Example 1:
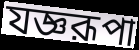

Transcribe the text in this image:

যজ্ঞরূপা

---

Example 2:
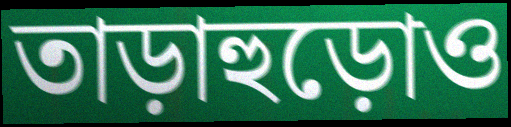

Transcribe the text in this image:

তাড়াহুড়োও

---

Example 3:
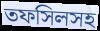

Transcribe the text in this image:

তফসিলসহ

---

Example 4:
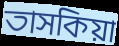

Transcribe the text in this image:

তাসকিয়া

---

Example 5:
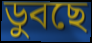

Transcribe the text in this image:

ডুবছে